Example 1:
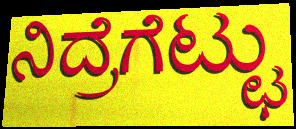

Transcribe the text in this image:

ನಿದ್ರೆಗೆಟ್ಟು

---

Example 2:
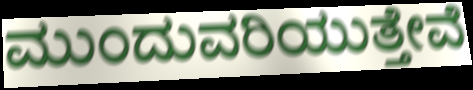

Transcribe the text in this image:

ಮುಂದುವರಿಯುತ್ತೇವೆ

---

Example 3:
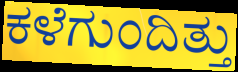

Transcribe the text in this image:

ಕಳೆಗುಂದಿತ್ತು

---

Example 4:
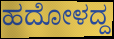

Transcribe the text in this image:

ಹದೋಳದ್ದ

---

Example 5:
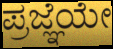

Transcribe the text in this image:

ಪ್ರಜ್ಞೆಯೇ